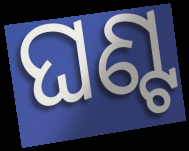
ଘଣ୍ଟ